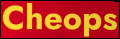
Cheops